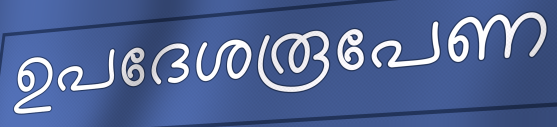
ഉപദേശരൂപേണ